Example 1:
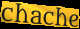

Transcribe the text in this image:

chache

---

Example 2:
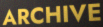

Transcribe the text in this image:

ARCHIVE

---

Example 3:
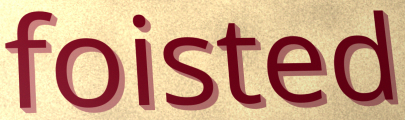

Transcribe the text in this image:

foisted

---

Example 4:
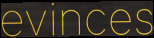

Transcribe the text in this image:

evinces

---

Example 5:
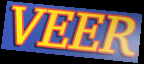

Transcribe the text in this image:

VEER